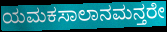
ಯಮಕಸಾಲಾನಮನ್ತರೇ